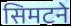
सिमटने